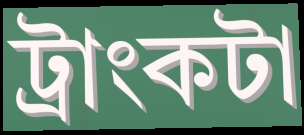
ট্রাংকটা